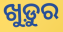
ଖୁଡ଼ୁର